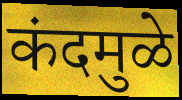
कंदमुळे